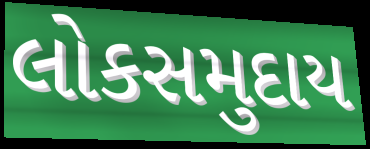
લોકસમુદાય